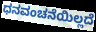
ಧನವಂಚನೆಯಿಲ್ಲದೆ